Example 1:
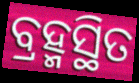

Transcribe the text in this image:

ବ୍ରହ୍ମସ୍ଥିତ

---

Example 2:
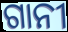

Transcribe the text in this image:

ଗାନୀ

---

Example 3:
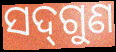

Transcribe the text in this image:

ସଦ୍‌ଗୁଣ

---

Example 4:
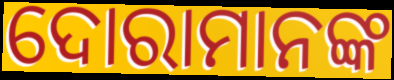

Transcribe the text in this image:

ଦୋରାମାନଙ୍କ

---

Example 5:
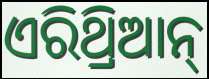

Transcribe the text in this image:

ଏରିଥ୍ରିଆନ୍